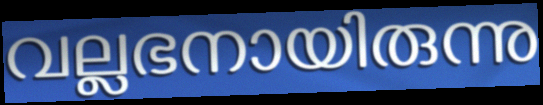
വല്ലഭനായിരുന്നു